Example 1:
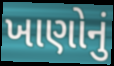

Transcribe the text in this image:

ખાણોનું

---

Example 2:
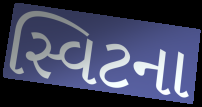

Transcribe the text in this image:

સ્વિટના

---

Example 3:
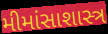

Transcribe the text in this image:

મીમાંસાશાસ્ત્ર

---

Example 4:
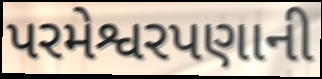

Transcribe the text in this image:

પરમેશ્વરપણાની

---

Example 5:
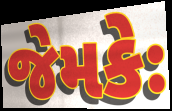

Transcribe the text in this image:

જેમકેઃ